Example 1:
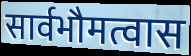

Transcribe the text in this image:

सार्वभौमत्वास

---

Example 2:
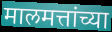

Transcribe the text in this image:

मालमत्तांच्या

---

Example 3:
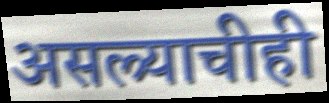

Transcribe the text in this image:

असल्याचीही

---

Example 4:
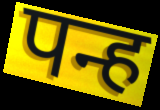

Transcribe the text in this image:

पन्ह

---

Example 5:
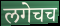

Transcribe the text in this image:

लगेचच